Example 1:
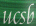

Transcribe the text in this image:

ucsb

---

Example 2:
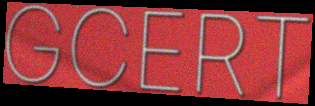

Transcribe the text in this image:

GCERT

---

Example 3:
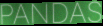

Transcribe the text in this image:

PANDAS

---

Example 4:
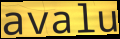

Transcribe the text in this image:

avalu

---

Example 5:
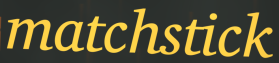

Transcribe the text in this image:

matchstick